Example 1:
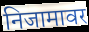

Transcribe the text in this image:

निजामावर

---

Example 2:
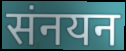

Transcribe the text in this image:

संनयन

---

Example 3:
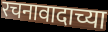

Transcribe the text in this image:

रचनावादाच्या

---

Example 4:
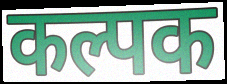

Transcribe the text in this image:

कल्पक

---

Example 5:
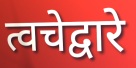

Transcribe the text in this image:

त्वचेद्वारे